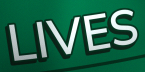
LIVES